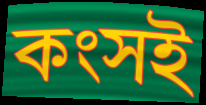
কংসই